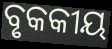
ବୃକକୀୟ